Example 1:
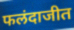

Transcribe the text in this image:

फलंदाजीत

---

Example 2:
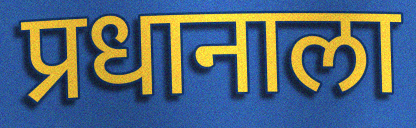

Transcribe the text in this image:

प्रधानाला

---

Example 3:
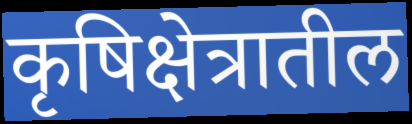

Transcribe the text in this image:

कृषिक्षेत्रातील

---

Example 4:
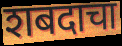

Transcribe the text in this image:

शबदाचा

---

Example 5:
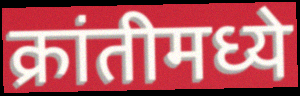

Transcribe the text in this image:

क्रांतीमध्ये